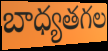
బాధ్యతగల